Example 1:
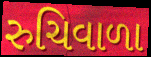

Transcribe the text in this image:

રુચિવાળા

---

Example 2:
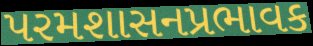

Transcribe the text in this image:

પરમશાસનપ્રભાવક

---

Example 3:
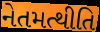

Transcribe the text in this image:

નેતમત્થીતિ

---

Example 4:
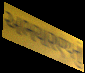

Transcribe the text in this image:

અભયારણ્યનું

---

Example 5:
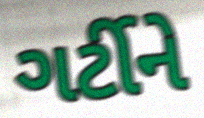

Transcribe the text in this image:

ગર્ટીને